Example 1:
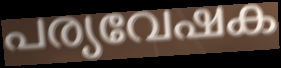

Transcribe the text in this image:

പര്യവേഷക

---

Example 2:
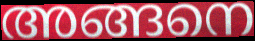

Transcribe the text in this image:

അങ്ങനെ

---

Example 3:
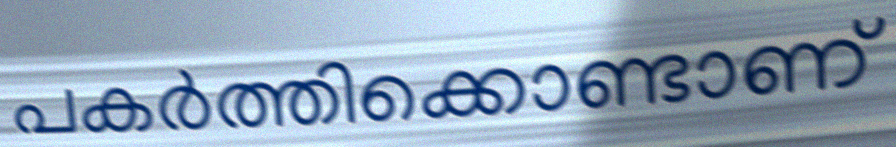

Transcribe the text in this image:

പകർത്തിക്കൊണ്ടാണ്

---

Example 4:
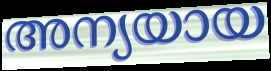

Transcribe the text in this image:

അന്യയായ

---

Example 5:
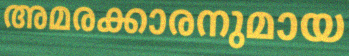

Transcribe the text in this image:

അമരക്കാരനുമായ